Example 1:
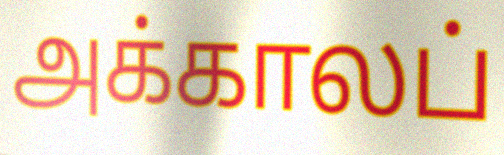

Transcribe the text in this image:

அக்காலப்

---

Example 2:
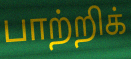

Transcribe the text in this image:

பாற்றிக்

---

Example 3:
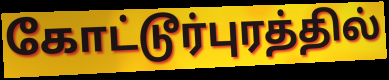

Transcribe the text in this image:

கோட்டூர்புரத்தில்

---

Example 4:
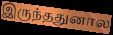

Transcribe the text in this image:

இருந்ததுனால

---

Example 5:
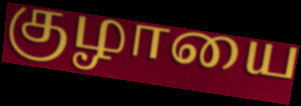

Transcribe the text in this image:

குழாயை